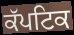
ਕੱਪਟਿਕ